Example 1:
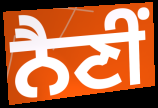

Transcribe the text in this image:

ਨੈਣੀਂ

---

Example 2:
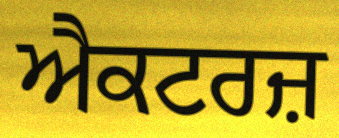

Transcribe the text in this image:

ਐਕਟਰਜ਼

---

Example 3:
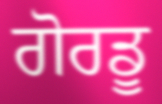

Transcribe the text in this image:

ਗੋਰਡੂ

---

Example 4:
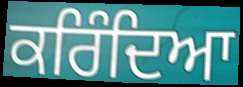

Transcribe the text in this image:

ਕਰਿੰਦਿਆ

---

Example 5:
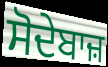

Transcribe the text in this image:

ਸੋਦੇਬਾਜ਼